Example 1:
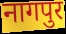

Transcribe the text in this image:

नागपुर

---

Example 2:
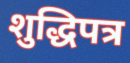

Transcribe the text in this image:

शुद्धिपत्र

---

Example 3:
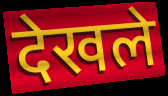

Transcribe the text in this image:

देखले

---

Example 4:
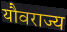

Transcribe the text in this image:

यौवराज्य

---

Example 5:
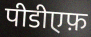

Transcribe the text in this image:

पीडीएफ़